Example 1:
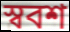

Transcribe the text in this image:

স্ববশ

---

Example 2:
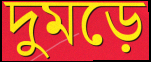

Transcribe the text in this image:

দুমড়ে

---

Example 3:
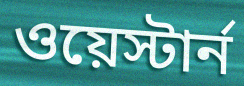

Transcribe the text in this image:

ওয়েস্টার্ন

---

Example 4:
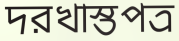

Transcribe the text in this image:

দরখাস্তপত্র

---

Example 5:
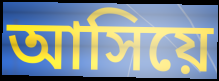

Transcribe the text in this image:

আসিয়ে